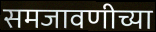
समजावणीच्या